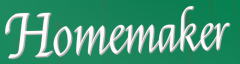
Homemaker